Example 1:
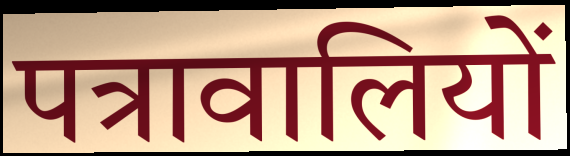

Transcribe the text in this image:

पत्रावालियों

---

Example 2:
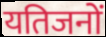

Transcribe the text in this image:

यतिजनों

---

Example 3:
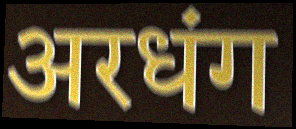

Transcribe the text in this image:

अरधंग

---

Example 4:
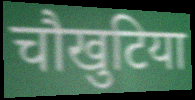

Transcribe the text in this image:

चौखुटिया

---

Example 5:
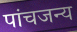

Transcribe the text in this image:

पांचजन्य